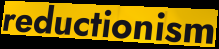
reductionism